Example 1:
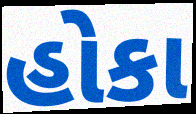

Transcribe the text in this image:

હોકા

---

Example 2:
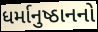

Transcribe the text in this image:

ધર્માનુષ્ઠાનનો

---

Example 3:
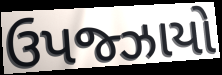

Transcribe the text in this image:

ઉપજ્ઝાયો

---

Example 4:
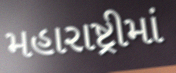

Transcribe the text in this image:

મહારાષ્ટ્રીમાં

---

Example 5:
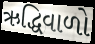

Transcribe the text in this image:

ઋદ્ધિવાળો